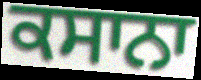
ਕਸਾਨਾ